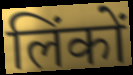
लिंकों